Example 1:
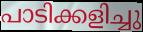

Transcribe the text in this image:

പാടിക്കളിച്ചു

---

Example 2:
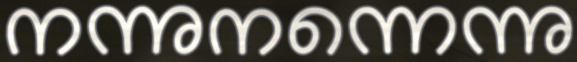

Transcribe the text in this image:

നന്നുനന്നെന്നു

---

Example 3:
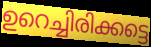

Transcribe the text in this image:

ഉറെച്ചിരിക്കട്ടെ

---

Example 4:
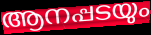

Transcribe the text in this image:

ആനപ്പടയും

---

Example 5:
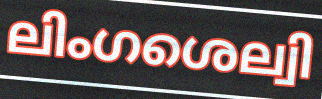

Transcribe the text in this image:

ലിംഗശെല്വി